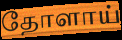
தோளாய்